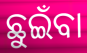
ଛୁଇଁବା